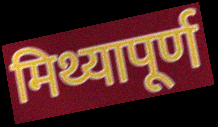
मिथ्यापूर्ण